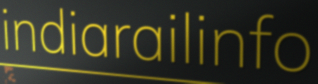
indiarailinfo